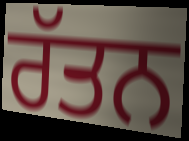
ਰੱਤਨ